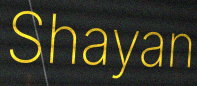
Shayan